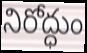
నిరోద్ధుం